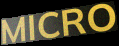
MICRO